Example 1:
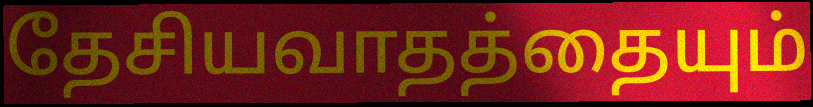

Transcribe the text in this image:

தேசியவாதத்தையும்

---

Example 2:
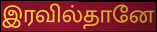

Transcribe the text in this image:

இரவில்தானே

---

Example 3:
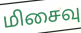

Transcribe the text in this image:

மிசைவு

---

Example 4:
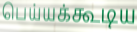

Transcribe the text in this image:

பெய்யக்கூடிய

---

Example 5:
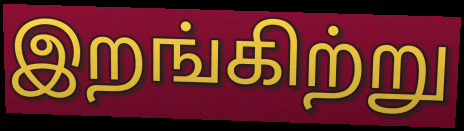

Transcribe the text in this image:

இறங்கிற்று